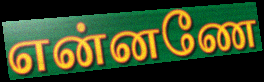
என்னணே